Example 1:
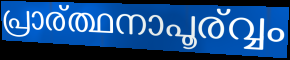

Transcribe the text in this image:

പ്രാര്ത്ഥനാപൂര്വ്വം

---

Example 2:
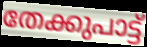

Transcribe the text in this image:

തേക്കുപാട്ട്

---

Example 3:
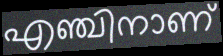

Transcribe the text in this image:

എഞ്ചിനാണ്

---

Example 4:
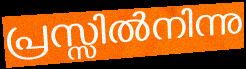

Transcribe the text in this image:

പ്രസ്സിൽനിന്നു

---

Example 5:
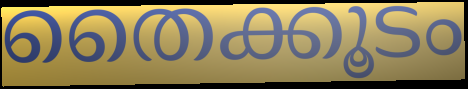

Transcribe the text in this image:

തൈക്കൂടം